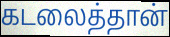
கடலைத்தான்